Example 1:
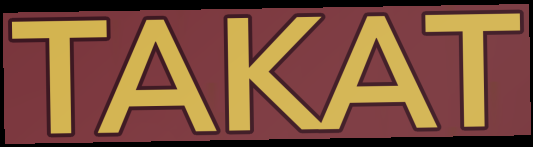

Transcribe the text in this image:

TAKAT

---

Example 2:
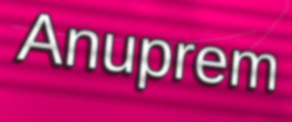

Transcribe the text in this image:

Anuprem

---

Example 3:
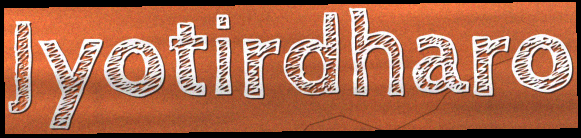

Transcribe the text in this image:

Jyotirdharo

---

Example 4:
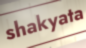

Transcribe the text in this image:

shakyata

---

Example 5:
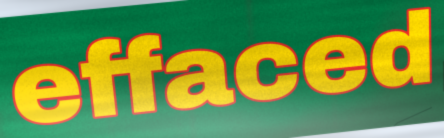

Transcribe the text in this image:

effaced